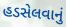
હડસેલવાનું